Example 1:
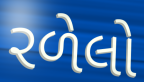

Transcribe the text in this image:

રળેલો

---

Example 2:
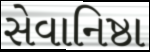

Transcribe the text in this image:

સેવાનિષ્ઠા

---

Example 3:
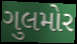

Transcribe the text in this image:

ગુલમોર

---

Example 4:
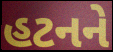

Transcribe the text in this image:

હટનને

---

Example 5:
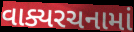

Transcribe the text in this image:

વાક્યરચનામાં